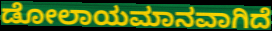
ಡೋಲಾಯಮಾನವಾಗಿದೆ